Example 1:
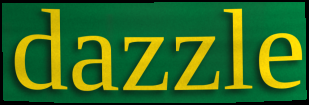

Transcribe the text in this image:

dazzle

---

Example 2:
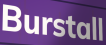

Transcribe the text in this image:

Burstall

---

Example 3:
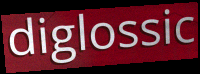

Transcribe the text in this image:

diglossic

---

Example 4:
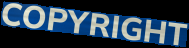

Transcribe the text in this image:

COPYRIGHT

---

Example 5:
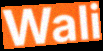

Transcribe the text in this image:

Wali